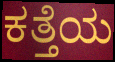
ಕತ್ತೆಯ